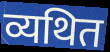
व्यथित